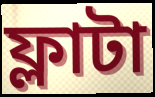
ফ্লাটা